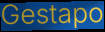
Gestapo